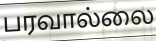
பரவால்லை